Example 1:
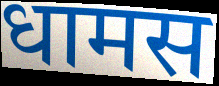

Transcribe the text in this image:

धामस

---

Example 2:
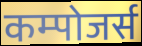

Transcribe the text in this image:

कम्पोजर्स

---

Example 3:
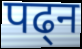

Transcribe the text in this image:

पढ्न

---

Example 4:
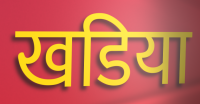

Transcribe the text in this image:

खडिया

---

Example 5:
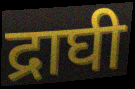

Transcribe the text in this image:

द्राघी